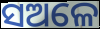
ସଅଳେ